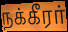
நக்கீரர்